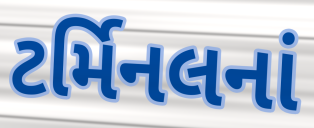
ટર્મિનલનાં